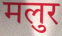
मलुर